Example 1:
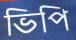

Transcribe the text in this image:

ভিপি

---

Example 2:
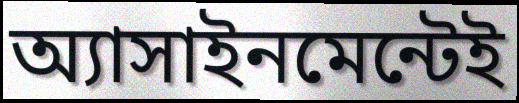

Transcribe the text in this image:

অ্যাসাইনমেন্টেই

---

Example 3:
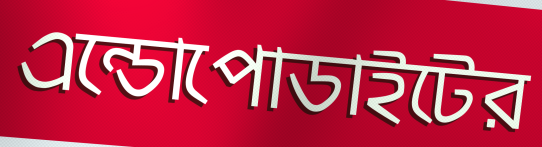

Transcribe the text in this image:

এন্ডোপোডাইটের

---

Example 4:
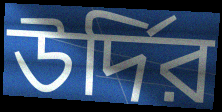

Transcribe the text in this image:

উর্দির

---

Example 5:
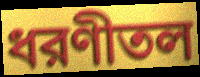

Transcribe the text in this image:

ধরণীতল